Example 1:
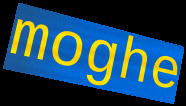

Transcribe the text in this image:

moghe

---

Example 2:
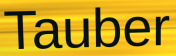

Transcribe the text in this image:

Tauber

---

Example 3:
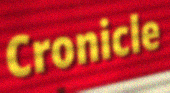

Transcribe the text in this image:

Cronicle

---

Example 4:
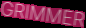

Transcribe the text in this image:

GRIMMER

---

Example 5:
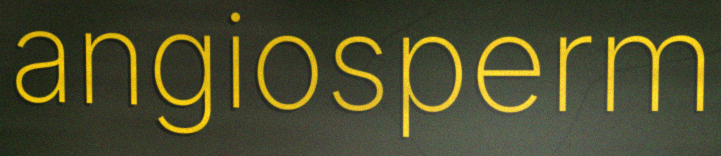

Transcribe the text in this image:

angiosperm